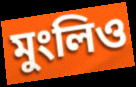
মুংলিও